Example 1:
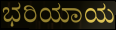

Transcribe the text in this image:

ಭರಿಯಾಯ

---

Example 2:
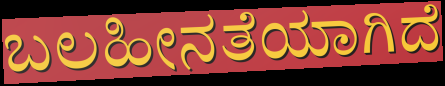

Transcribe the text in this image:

ಬಲಹೀನತೆಯಾಗಿದೆ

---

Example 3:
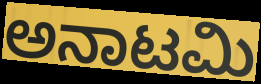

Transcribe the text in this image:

ಅನಾಟಮಿ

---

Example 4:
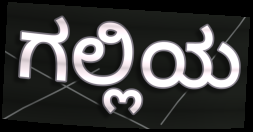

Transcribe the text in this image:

ಗಲ್ಲಿಯ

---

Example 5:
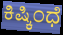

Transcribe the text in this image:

ಕಿಷ್ಕಿಂಧೆ